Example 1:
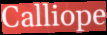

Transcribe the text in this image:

Calliope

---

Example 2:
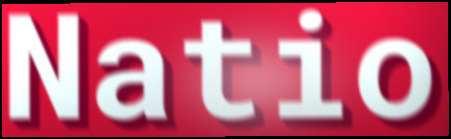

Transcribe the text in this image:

Natio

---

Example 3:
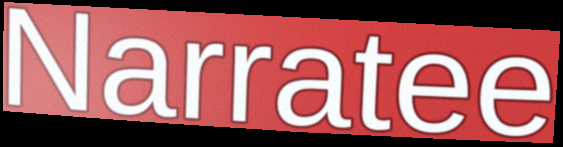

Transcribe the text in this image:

Narratee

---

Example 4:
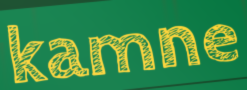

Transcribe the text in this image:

kamne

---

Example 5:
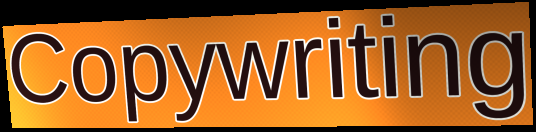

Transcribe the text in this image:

Copywriting